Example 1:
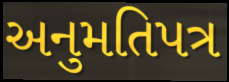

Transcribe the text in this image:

અનુમતિપત્ર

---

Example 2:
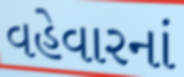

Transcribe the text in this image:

વહેવારનાં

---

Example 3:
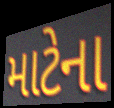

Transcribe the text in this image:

માટેના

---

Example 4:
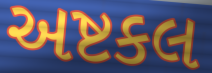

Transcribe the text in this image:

અષ્ટકલ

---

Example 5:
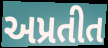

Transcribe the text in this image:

અપ્રતીત